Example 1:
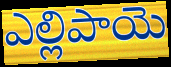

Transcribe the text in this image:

ఎల్లిపాయె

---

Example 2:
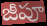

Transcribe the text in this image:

జీపూ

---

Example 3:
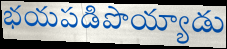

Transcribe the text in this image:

భయపడిపొయ్యాడు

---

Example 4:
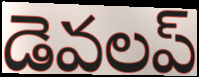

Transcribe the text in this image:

డెవలప్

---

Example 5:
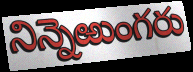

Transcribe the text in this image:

నిన్నెఱుంగరు